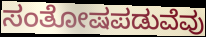
ಸಂತೋಷಪಡುವೆವು